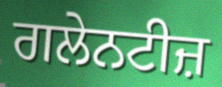
ਗਲੇਨਟੀਜ਼